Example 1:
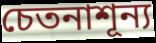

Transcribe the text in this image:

চেতনাশূন্য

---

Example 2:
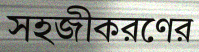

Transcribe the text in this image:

সহজীকরণের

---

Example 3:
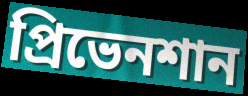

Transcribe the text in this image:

প্রিভেনশান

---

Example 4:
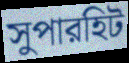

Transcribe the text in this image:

সুপারহিট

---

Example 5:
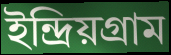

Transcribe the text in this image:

ইন্দ্রিয়গ্রাম